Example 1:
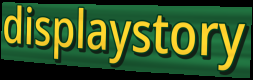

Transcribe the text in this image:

displaystory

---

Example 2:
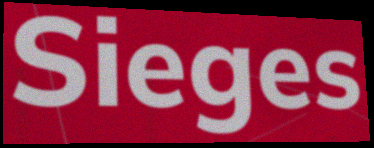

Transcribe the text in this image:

Sieges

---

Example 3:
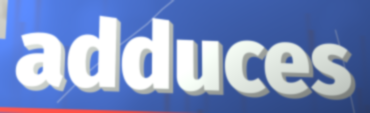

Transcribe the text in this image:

adduces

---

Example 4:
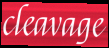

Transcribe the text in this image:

cleavage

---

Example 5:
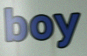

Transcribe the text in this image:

boy